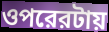
ওপরেরটায়